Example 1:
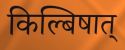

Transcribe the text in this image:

किल्बिषात्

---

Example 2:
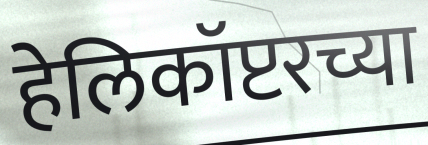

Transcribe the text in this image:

हेलिकॉप्टरच्या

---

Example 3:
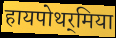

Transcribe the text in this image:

हायपोथर्मिया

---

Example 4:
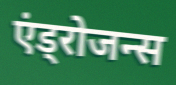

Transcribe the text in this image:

एंड्रोजन्स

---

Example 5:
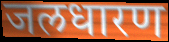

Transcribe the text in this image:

जलधारण